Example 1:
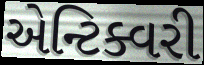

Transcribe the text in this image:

એન્ટિક્વરી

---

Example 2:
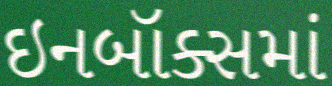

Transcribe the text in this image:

ઇનબૉક્સમાં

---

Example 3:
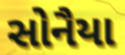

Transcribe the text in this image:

સોનૈયા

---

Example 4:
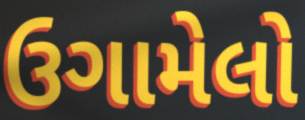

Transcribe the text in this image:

ઉગામેલો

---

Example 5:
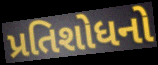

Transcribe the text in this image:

પ્રતિશોધનો